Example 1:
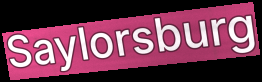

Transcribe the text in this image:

Saylorsburg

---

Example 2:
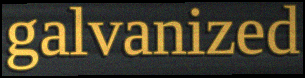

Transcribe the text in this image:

galvanized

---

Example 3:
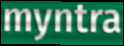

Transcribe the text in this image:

myntra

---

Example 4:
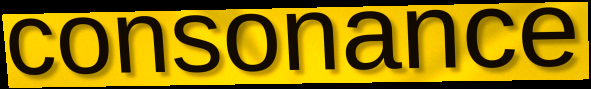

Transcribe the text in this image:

consonance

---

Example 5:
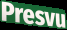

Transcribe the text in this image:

Presvu